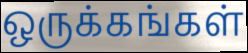
ஒருக்கங்கள்